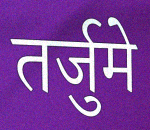
तर्जुमे